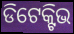
ଡିଟେକ୍ଟିଭ